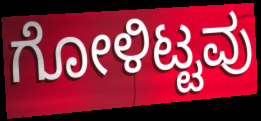
ಗೋಳಿಟ್ಟವು